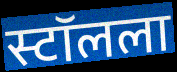
स्टॉलला